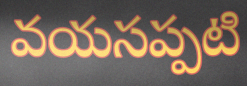
వయసప్పటి